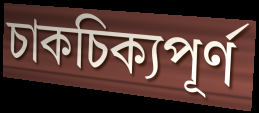
চাকচিক্যপূর্ণ